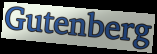
Gutenberg